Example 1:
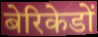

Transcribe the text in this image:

बेरिकेडों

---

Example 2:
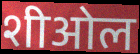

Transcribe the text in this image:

शीओल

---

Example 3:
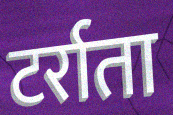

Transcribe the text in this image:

टर्राता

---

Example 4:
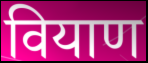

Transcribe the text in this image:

वियाण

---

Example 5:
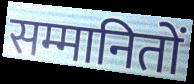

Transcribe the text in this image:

सम्मानितों